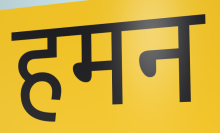
हमन